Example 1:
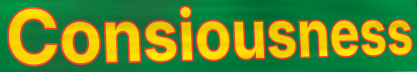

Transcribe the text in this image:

Consiousness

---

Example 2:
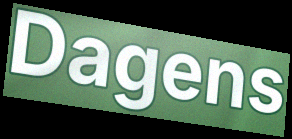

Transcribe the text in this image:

Dagens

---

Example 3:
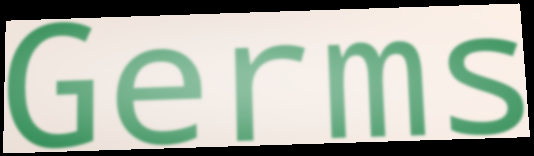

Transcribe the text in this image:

Germs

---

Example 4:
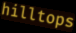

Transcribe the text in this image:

hilltops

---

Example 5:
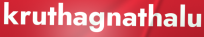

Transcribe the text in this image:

kruthagnathalu